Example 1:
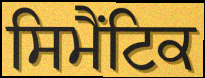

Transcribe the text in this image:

ਸਿਮੈਂਟਿਕ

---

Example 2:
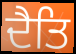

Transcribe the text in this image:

ਦੈਤਿ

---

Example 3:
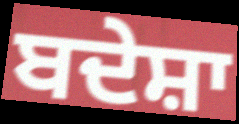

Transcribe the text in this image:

ਬਦੇਸ਼ਾ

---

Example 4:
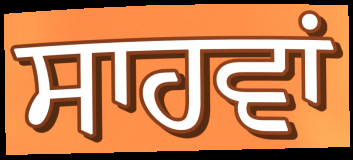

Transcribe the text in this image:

ਸਾਹਵਾਂ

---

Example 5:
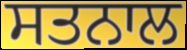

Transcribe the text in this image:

ਸਤਨਾਲ